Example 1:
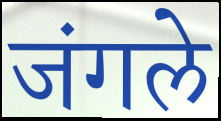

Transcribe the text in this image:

जंगले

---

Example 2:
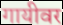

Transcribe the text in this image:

गायीवर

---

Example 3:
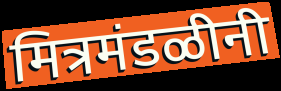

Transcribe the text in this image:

मित्रमंडळीनी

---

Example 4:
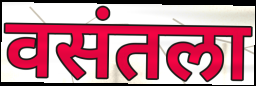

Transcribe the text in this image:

वसंतला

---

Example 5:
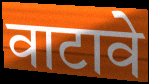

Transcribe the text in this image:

वाटावे